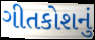
ગીતકોશનું